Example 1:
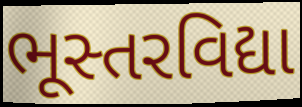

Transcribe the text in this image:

ભૂસ્તરવિદ્યા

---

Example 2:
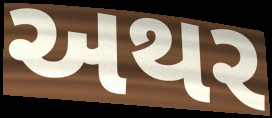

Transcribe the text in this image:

અથર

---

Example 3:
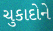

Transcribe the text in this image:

ચુકાદોને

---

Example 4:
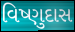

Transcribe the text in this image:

વિષ્ણુદાસ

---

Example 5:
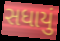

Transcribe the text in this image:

સધાયું